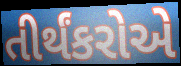
તીર્થંકરોએ